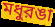
মধুরঙা